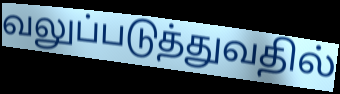
வலுப்படுத்துவதில்